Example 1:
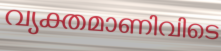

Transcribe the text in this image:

വ്യക്തമാണിവിടെ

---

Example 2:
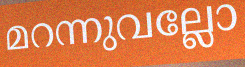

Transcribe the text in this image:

മറന്നുവല്ലോ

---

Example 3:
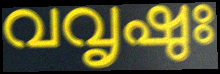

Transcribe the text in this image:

വവൃഷുഃ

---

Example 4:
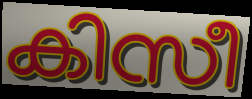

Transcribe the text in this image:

കിസീ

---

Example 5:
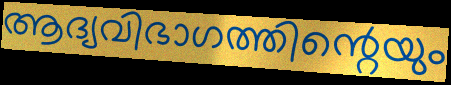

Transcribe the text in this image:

ആദ്യവിഭാഗത്തിന്റെയും